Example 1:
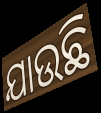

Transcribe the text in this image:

ଯାଉଛି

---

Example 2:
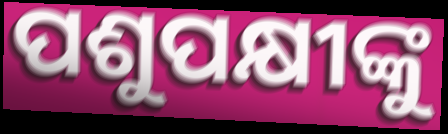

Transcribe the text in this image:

ପଶୁପକ୍ଷୀଙ୍କୁ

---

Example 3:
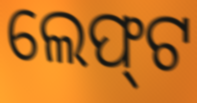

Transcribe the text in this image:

ଲେଫ୍‌ଟ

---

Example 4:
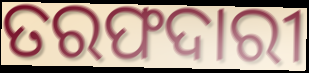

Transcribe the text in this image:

ତରଫଦାରୀ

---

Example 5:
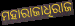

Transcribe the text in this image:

ମହାରାଜାଧିରାଜ